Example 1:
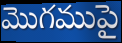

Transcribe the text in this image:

మొగముపై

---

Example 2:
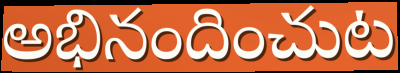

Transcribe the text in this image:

అభినందించుట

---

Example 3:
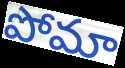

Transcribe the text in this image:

పోమా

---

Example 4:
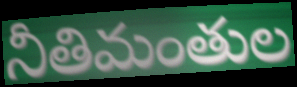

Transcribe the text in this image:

నీతిమంతుల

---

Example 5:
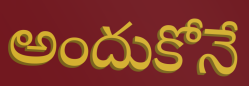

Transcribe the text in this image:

అందుకోనే